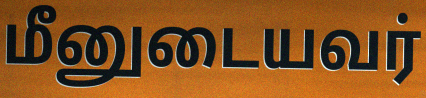
மீனுடையவர்